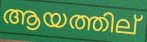
ആയത്തില്